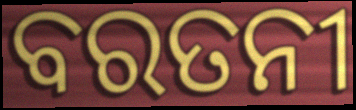
ବରତନୀ